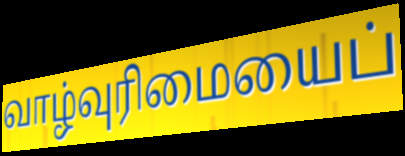
வாழ்வுரிமையைப்